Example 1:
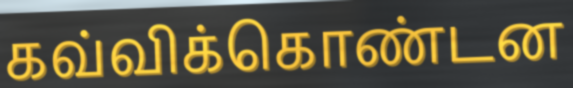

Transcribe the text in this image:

கவ்விக்கொண்டன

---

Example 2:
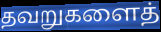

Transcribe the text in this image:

தவறுகளைத்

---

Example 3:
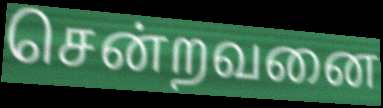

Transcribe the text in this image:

சென்றவனை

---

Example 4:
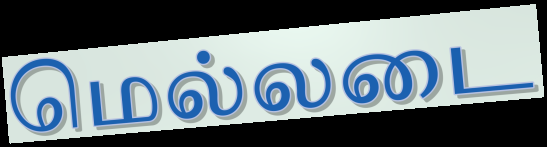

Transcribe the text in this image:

மெல்லடை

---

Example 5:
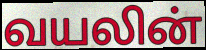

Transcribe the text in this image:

வயலின்